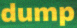
dump